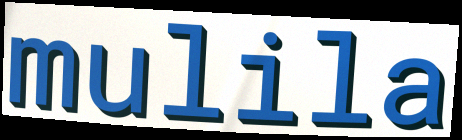
mulila